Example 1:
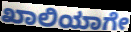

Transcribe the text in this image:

ಖಾಲಿಯಾಗೇ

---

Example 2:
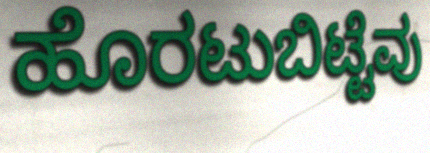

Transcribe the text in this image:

ಹೊರಟುಬಿಟ್ಟೆವು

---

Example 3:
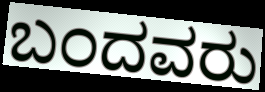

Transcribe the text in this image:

ಬಂದವರು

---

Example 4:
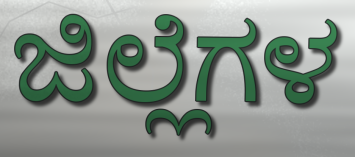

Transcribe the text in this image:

ಜಿಲ್ಲೆಗಳ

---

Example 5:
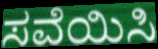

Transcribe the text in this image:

ಸವೆಯಿಸಿ